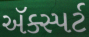
ઍક્સ્પર્ટ